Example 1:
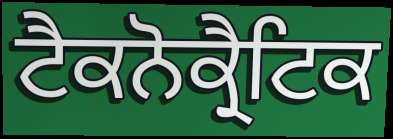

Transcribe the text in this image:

ਟੈਕਨੋਕ੍ਰੈਟਿਕ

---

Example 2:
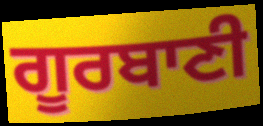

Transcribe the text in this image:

ਗੂਰਬਾਣੀ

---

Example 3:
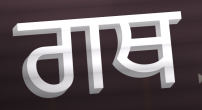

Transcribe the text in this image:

ਗਥ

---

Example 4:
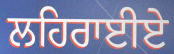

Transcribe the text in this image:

ਲਹਿਰਾਈਏ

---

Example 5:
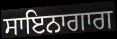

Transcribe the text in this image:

ਸਾਇਨਾਗਾਗ